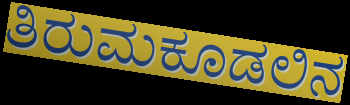
ತಿರುಮಕೂಡಲಿನ